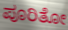
ಪೂರಿತೋ